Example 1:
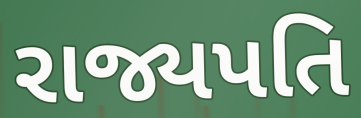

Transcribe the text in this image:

રાજ્યપતિ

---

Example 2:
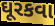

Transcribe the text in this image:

ઘૂરકવા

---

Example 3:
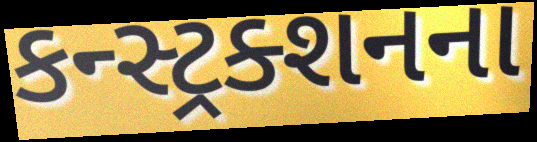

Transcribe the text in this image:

કન્સ્ટ્રક્શનના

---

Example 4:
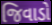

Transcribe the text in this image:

જિવાડો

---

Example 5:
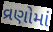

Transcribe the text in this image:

વ્રણોમાં